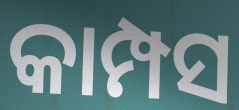
କାମ୍ପସ